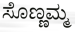
ಸೊಣ್ಣಮ್ಮ